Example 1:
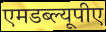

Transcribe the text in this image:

एमडब्ल्यूपीए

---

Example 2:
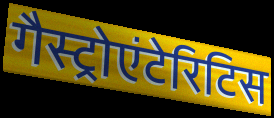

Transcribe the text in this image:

गैस्ट्रोएंटेरिटिस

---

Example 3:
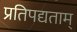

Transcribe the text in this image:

प्रतिपद्यताम्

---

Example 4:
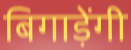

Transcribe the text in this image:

बिगाड़ेंगी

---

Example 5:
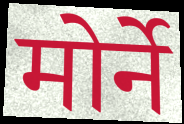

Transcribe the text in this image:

मोर्ने